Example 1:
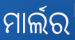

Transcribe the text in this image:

ମାର୍ଲର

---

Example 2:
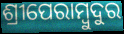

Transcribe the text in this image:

ଶ୍ରୀପେରାମ୍ବୁଦୁର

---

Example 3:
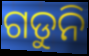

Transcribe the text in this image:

ଗଡୁନି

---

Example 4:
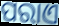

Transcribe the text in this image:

ପରାଏ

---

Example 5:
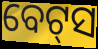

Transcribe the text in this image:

ବେଟ୍‍ସ